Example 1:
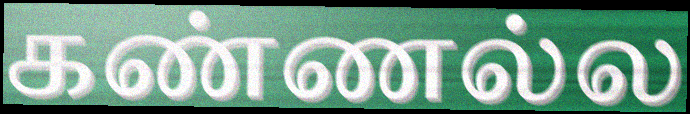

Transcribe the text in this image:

கண்ணல்ல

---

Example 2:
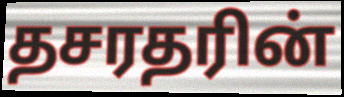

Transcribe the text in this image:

தசரதரின்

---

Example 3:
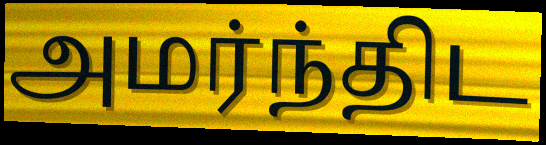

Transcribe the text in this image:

அமர்ந்திட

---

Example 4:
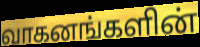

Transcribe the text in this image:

வாகனங்களின்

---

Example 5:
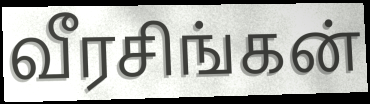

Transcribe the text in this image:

வீரசிங்கன்